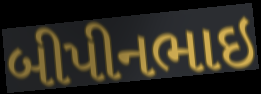
બીપીનભાઇ